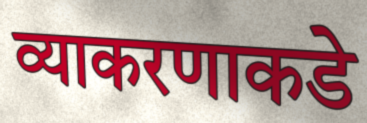
व्याकरणाकडे